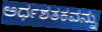
ಅರ್ಧಶತಕವನ್ನು